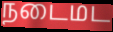
நடைமட